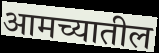
आमच्यातील